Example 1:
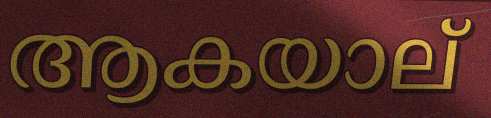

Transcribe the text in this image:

ആകയാല്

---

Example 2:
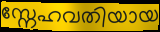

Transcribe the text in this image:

സ്നേഹവതിയായ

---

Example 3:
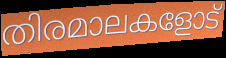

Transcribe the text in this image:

തിരമാലകളോട്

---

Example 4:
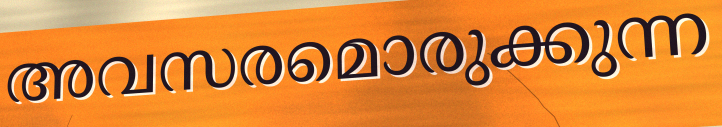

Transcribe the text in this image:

അവസരമൊരുക്കുന്ന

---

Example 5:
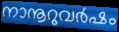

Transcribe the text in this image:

നാനൂറുവർഷം